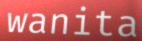
wanita